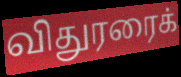
விதுரரைக்